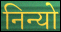
निन्यो